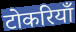
टोकरियाँ